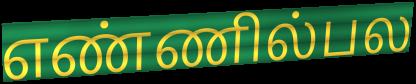
எண்ணில்பல